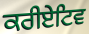
ਕਰੀਏਟਿਵ